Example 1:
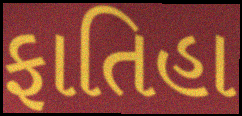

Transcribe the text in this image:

ફાતિહા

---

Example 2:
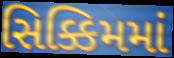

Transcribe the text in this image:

સિક્કિમમાં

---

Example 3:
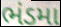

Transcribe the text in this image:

ભંડમા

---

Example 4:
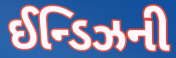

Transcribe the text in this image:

ઈન્ડિઝની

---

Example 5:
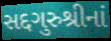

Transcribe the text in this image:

સદ્દગુરુશ્રીનાં